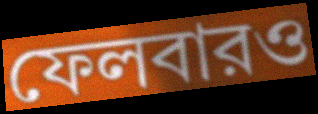
ফেলবারও